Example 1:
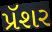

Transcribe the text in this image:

પ્રૅશર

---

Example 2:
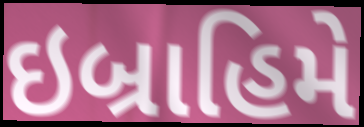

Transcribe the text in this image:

ઇબ્રાહિમે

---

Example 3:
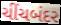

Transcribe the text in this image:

ચીંચબંદર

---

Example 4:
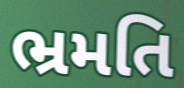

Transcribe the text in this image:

ભ્રમતિ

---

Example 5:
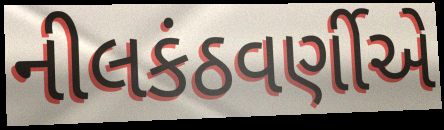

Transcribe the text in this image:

નીલકંઠવર્ણીએ